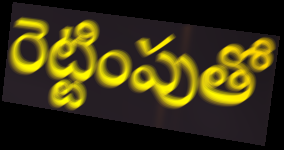
రెట్టింపుతో